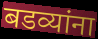
बडव्यांना